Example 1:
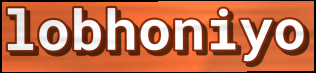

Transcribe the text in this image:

lobhoniyo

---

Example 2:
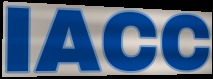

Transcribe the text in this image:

IACC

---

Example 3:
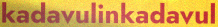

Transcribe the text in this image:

kadavulinkadavul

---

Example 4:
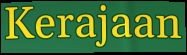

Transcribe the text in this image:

Kerajaan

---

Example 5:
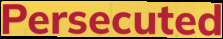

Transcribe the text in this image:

Persecuted